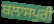
ਬਲਾਸਪੁਰੀ